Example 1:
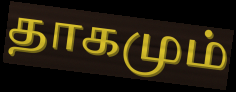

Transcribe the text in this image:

தாகமும்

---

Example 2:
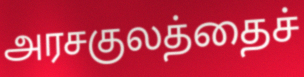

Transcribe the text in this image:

அரசகுலத்தைச்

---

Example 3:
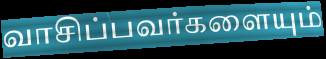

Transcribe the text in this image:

வாசிப்பவர்களையும்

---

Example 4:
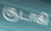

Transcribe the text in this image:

சூடாகி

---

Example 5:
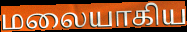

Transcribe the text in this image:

மலையாகிய